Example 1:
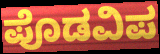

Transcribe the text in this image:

ಪೊಡವಿಪ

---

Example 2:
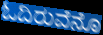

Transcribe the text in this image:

ಓದಿರುವೆನೊ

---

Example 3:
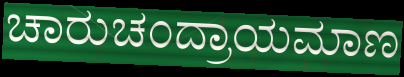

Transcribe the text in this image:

ಚಾರುಚಂದ್ರಾಯಮಾಣ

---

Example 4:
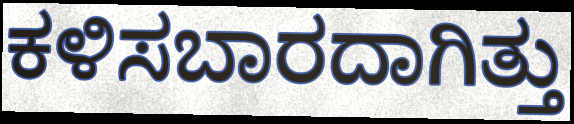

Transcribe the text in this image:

ಕಳಿಸಬಾರದಾಗಿತ್ತು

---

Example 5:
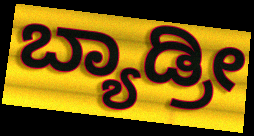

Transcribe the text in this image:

ಬ್ಯಾಡ್ರೀ